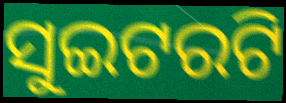
ସୁଇଟରଟି